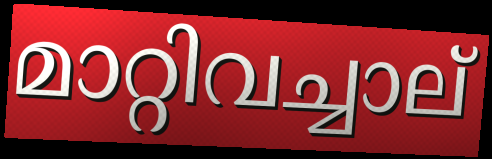
മാറ്റിവച്ചാല്